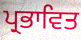
ਪ੍ਰਭਾਵਿਤ